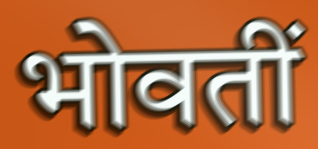
भोवतीं